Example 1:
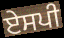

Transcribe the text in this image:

ਏਸਪੀ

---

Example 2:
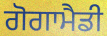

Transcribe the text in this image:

ਗੋਗਾਮੈਡੀ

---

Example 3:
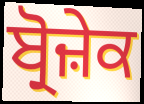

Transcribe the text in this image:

ਬ੍ਰੋਜ਼ੇਕ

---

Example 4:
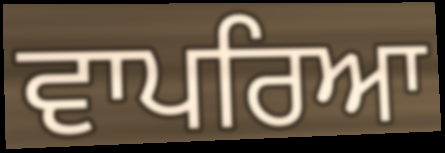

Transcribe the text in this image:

ਵਾਪਰਿਆ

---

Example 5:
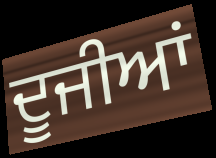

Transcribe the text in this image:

ਦੂਜੀਆਂ